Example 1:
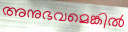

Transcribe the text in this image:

അനുഭവമെങ്കിൽ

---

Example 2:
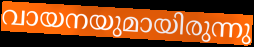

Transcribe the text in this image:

വായനയുമായിരുന്നു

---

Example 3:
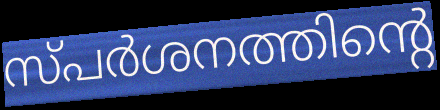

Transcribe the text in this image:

സ്പർശനത്തിന്റെ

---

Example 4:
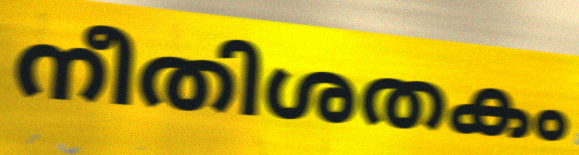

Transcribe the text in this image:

നീതിശതകം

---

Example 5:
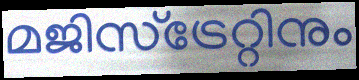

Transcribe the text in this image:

മജിസ്ട്രേറ്റിനും